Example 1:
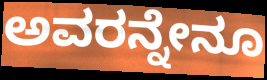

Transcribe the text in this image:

ಅವರನ್ನೇನೂ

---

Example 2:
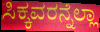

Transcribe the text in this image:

ಸಿಕ್ಕವರನ್ನೆಲ್ಲಾ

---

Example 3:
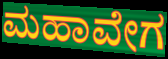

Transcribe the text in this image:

ಮಹಾವೇಗ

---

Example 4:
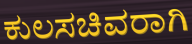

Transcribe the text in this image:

ಕುಲಸಚಿವರಾಗಿ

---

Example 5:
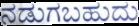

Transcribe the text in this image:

ನಡುಗಬಹುದು